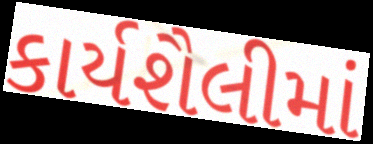
કાર્યશૈલીમાં